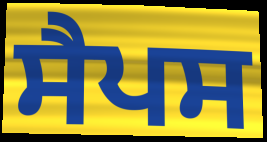
ਸੈਪਸ